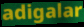
adigalar